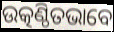
ଉତ୍କଣ୍ଠିତଭାବେ